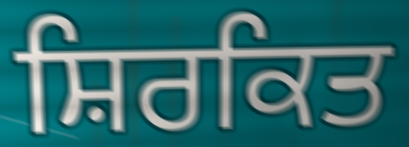
ਸ਼ਿਰਕਿਤ